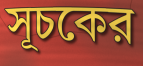
সূচকের